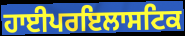
ਹਾਈਪਰਇਲਾਸਟਿਕ